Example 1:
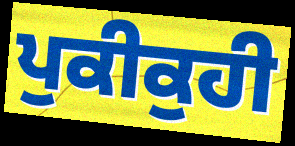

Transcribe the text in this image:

ਪੁਕੀਕੁਹੀ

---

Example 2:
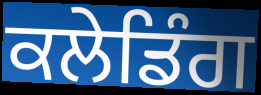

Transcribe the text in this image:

ਕਲੇਡਿੰਗ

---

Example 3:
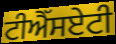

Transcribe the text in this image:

ਟੀਐੱਸਏਟੀ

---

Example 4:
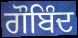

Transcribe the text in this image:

ਗੌਬਿੰਦ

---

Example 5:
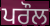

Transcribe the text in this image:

ਪਰੌਲ